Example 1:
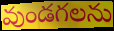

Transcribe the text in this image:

వుండగలను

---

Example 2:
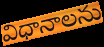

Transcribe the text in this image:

విధానాలను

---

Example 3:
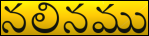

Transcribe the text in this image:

నలినము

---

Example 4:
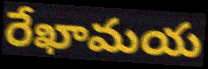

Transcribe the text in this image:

రేఖామయ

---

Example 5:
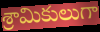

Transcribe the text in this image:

శ్రామికులుగా